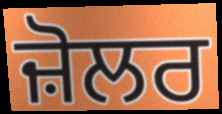
ਜ਼ੋਲਰ